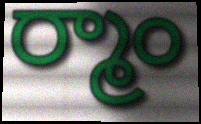
ర్మాం